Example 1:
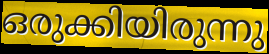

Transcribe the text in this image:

ഒരുക്കിയിരുന്നു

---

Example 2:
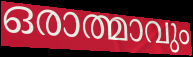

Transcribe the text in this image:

ഒരാത്മാവും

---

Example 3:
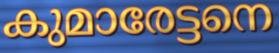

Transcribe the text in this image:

കുമാരേട്ടനെ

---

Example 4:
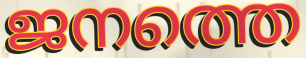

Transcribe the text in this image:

ജനത്തെ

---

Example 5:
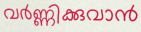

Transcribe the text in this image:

വർണ്ണിക്കുവാൻ